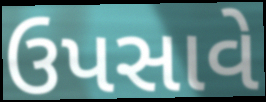
ઉપસાવે